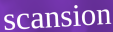
scansion